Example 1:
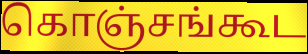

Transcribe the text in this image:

கொஞ்சங்கூட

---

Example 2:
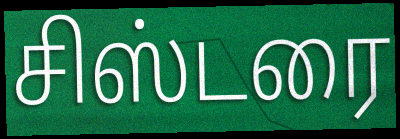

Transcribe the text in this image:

சிஸ்டரை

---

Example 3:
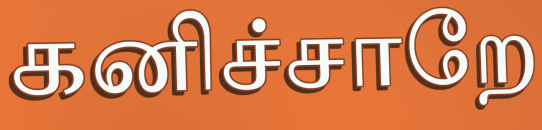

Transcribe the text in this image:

கனிச்சாறே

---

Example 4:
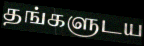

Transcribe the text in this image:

தங்களுடய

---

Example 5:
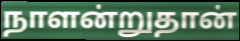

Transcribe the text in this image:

நாளன்றுதான்